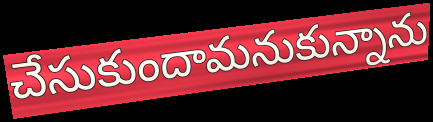
చేసుకుందామనుకున్నాను